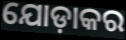
ଯୋଡ଼ାକର